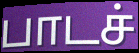
பாடச்